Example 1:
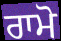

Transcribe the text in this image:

ਰਾਮੋ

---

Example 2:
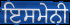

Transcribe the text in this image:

ਇਸਮੇਨੀ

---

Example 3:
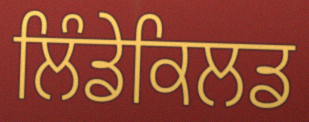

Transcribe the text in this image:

ਲਿੰਡੇਕਿਲਡ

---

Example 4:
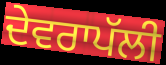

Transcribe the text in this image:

ਦੇਵਰਾਪੱਲੀ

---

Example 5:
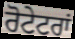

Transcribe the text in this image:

ਰੋਟੇਟਰਾਂ